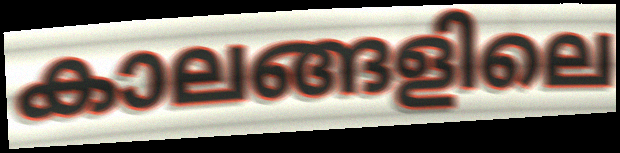
കാലങ്ങളിലെ